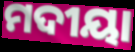
ମଦୀୟା